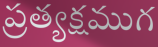
ప్రత్యక్షముగ